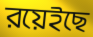
রয়েইছে